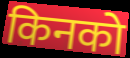
किनको